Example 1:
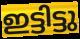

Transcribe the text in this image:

ഇട്ടിട്ടു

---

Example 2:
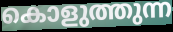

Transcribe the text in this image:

കൊളുത്തുന്ന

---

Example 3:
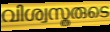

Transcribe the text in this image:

വിശ്വസ്തരുടെ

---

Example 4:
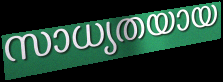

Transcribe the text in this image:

സാധ്യതയായ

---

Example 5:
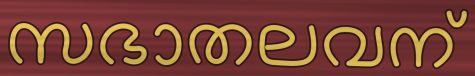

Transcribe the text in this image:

സഭാതലവന്